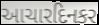
આચારદિનકર